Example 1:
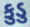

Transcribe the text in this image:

કુડુ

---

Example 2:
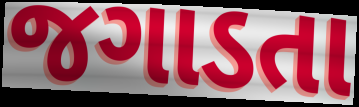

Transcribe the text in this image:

જગાડતા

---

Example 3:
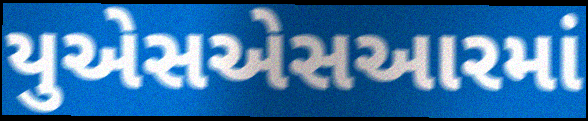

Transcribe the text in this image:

યુએસએસઆરમાં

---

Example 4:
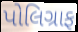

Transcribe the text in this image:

પોલિગ્રાફ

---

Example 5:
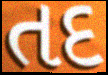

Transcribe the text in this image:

તદ